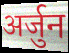
अर्जुन